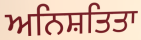
ਅਨਿਸ਼ਤਿਤਾ